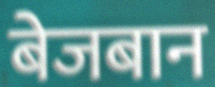
बेजबान